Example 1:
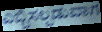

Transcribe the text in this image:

ಎಬ್ಬಿಸಲ್ಪಡುವಾಗ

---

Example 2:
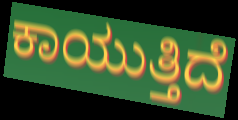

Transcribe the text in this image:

ಕಾಯುತ್ತಿದೆ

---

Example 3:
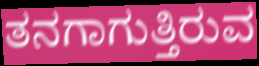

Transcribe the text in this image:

ತನಗಾಗುತ್ತಿರುವ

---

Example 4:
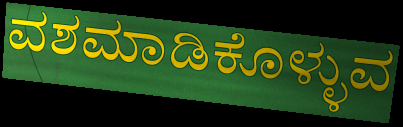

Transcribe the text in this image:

ವಶಮಾಡಿಕೊಳ್ಳುವ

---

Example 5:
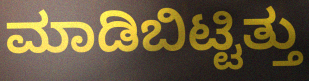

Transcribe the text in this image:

ಮಾಡಿಬಿಟ್ಟಿತ್ತು